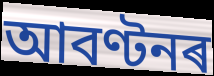
আবণ্টনৰ